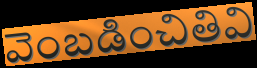
వెంబడించితివి